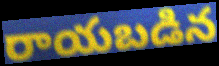
రాయబడిన